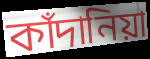
কাঁদানিয়া